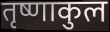
तृष्णाकुल